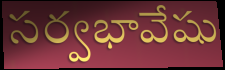
సర్వభావేషు